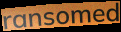
ransomed